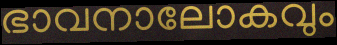
ഭാവനാലോകവും